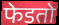
फेडतो